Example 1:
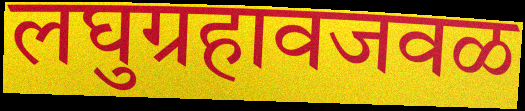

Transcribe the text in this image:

लघुग्रहावजवळ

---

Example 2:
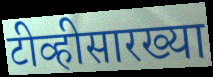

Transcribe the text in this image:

टीव्हीसारख्या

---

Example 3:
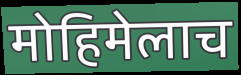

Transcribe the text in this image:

मोहिमेलाच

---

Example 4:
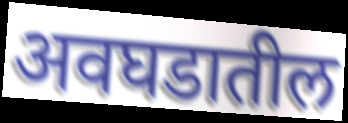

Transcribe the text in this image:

अवघडातील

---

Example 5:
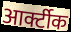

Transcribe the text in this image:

आर्क्टीक